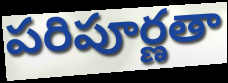
పరిపూర్ణతా